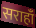
सराहाँ